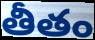
తీతం